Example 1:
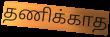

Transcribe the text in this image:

தணிக்காத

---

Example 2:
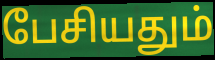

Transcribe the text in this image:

பேசியதும்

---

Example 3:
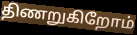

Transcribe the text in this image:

திணறுகிறோம்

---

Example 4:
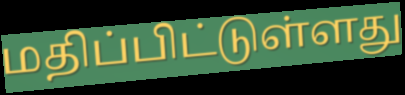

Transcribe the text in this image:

மதிப்பிட்டுள்ளது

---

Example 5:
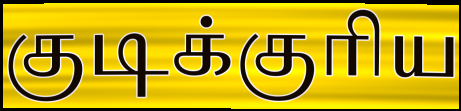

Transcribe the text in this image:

குடிக்குரிய